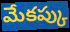
మేకప్కు